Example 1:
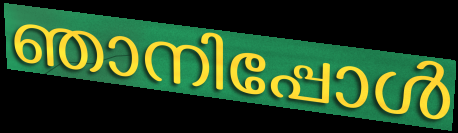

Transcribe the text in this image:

ഞാനിപ്പോൾ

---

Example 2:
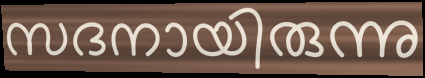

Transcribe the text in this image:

സദനായിരുന്നു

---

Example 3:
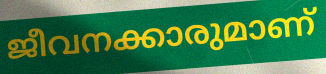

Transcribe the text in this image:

ജീവനക്കാരുമാണ്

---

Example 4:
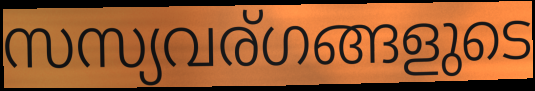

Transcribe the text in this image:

സസ്യവര്ഗങ്ങളുടെ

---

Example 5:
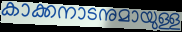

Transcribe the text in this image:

കാക്കനാടനുമായുള്ള